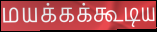
மயக்கக்கூடிய